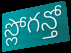
స్లోగన్తో